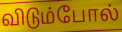
விடும்போல்